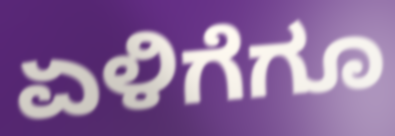
ಏಳಿಗೆಗೂ